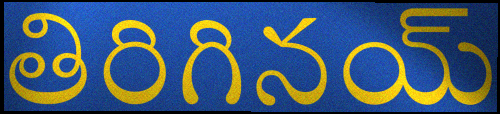
తిరిగినయ్